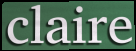
claire